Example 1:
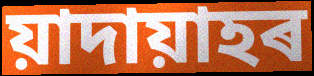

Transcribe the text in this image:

য়াদায়াহৰ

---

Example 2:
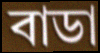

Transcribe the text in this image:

বাডা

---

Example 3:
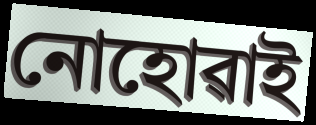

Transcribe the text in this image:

নোহোৱাই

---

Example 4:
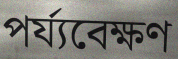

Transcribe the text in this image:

পৰ্য্যবেক্ষণ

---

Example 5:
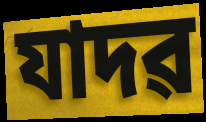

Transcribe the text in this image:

যাদৱ